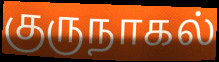
குருநாகல்